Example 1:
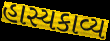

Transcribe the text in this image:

હાસ્યકાવ્ય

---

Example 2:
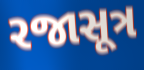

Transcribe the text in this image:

રજાસૂત્ર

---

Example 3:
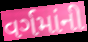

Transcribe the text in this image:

વર્ગમાંની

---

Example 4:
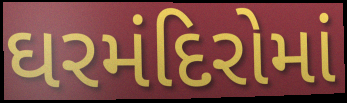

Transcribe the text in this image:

ઘરમંદિરોમાં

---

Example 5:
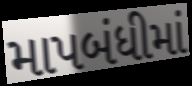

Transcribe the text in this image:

માપબંધીમાં